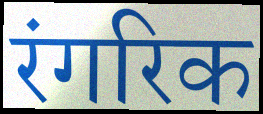
रंगरिक